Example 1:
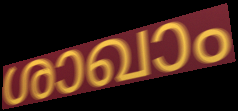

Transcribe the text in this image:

ശാഖാം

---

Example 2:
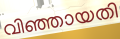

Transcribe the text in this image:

വിഞ്ഞായതി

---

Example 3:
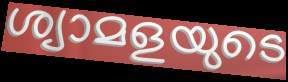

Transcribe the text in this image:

ശ്യാമളയുടെ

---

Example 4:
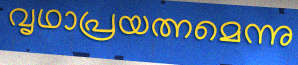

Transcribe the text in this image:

വൃഥാപ്രയത്നമെന്നു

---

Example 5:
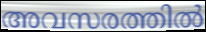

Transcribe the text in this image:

അവസരത്തിൽ